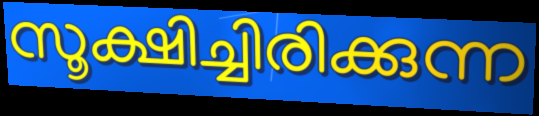
സൂക്ഷിച്ചിരിക്കുന്ന